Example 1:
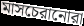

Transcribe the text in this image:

মাসচেরানোরা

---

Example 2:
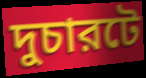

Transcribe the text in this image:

দুচারটে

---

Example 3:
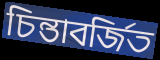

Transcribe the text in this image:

চিন্তাবর্জিত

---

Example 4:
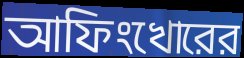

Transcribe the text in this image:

আফিংখোরের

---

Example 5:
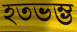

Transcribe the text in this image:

হতভম্ভ